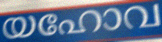
യഹോവ